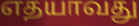
எதயாவது